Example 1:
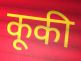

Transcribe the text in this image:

कूकी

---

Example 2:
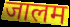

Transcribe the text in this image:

जालम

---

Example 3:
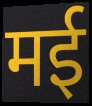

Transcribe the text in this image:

मई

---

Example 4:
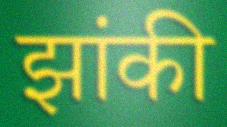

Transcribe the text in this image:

झांकी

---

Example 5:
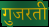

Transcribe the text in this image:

गुजरती